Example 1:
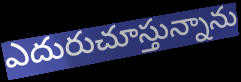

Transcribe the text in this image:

ఎదురుచూస్తున్నాను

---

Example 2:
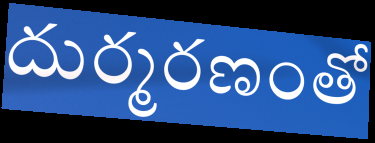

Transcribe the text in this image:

దుర్మరణంతో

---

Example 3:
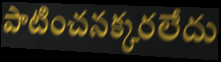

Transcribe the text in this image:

పాటించనక్కరలేదు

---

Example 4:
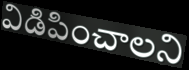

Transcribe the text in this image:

విడిపించాలని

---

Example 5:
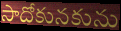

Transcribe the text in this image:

సాదోకునకును